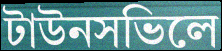
টাউনসভিলে